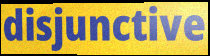
disjunctive